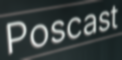
Poscast